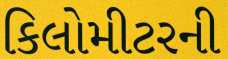
કિલોમીટરની